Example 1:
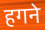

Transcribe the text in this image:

हगने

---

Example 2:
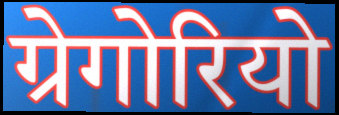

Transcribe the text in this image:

ग्रेगोरियो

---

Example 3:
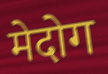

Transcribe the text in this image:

मेदोग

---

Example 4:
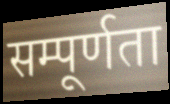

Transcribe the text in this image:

सम्पूर्णता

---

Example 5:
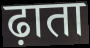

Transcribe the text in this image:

ढ़ाता